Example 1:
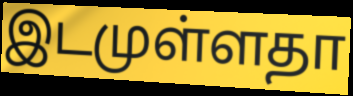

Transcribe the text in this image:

இடமுள்ளதா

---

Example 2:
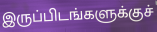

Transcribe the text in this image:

இருப்பிடங்களுக்குச்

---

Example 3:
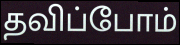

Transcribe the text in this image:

தவிப்போம்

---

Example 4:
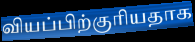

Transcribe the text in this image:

வியப்பிற்குரியதாக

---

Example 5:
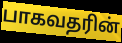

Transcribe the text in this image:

பாகவதரின்